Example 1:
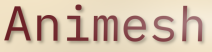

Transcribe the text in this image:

Animesh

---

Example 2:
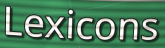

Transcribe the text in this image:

Lexicons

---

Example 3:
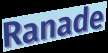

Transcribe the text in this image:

Ranade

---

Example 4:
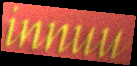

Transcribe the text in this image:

innuu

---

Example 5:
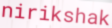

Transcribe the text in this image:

nirikshak